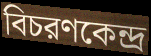
বিচরণকেন্দ্র